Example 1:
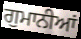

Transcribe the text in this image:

ਗੁਮਾਨੀਆਂ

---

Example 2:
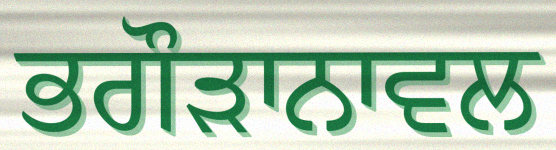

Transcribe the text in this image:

ਭਗੌੜਾਨਾਵਲ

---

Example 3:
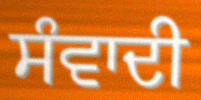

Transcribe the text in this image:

ਸੰਵਾਦੀ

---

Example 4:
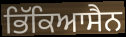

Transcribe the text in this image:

ਭਿੱਕਿਆਸੈਨ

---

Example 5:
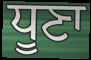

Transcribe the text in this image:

ਧੂਣਾ